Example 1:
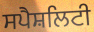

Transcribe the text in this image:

ਸਪੈਸ਼ਲਿਟੀ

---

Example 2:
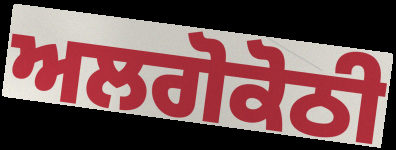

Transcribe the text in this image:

ਅਲਗੋਕੋਠੀ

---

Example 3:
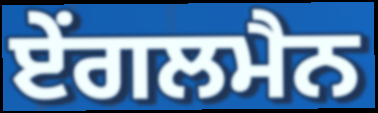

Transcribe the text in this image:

ਏਂਗਲਮੈਨ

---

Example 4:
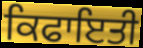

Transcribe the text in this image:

ਕਿਫਾਇਤੀ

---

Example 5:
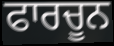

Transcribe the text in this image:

ਫਾਰਚੂਨ